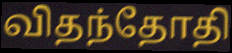
விதந்தோதி